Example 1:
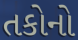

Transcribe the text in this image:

તકોનો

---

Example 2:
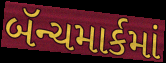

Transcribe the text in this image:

બૅન્ચમાર્કમાં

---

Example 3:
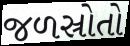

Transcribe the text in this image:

જળસ્રોતો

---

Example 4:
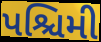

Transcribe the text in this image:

પશ્ચિમી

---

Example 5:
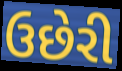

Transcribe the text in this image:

ઉછેરી